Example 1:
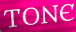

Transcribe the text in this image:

TONE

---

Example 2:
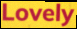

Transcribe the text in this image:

Lovely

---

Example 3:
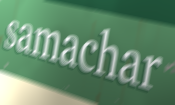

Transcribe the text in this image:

samachar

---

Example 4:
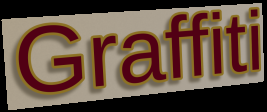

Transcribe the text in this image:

Graffiti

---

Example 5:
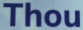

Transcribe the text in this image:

Thou